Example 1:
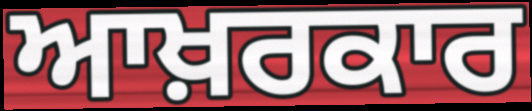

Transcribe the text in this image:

ਆਖ਼ਰਕਾਰ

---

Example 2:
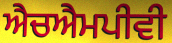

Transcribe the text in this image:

ਐਚਐਮਪੀਵੀ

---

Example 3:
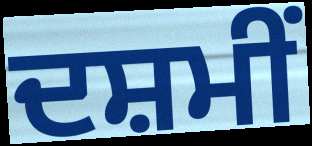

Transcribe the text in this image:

ਦਸ਼ਮੀਂ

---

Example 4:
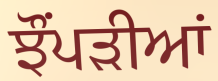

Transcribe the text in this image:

ਝੌਂਪੜੀਆਂ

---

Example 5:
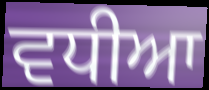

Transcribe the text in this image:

ਵਧੀਆ